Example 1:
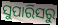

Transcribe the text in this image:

ସୁପାରିସରୁ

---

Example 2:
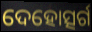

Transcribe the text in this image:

ଦେହୋତ୍ସର୍ଗ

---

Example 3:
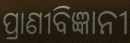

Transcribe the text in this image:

ପ୍ରାଣୀବିଜ୍ଞାନୀ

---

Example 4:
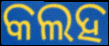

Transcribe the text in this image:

କଲହ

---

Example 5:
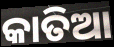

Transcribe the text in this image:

କାତିଆ